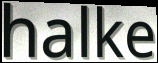
halke